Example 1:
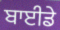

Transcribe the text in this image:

ਬਾਈਡੇ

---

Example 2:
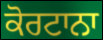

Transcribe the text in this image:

ਕੋਰਟਾਨਾ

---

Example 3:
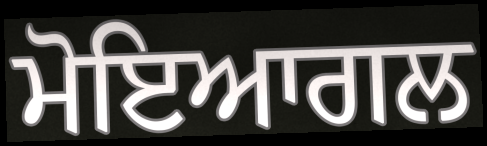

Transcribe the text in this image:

ਮੋਇਆਗਲ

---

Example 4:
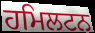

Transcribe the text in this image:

ਹਮਿਲਟਨ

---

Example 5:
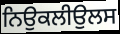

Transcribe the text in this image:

ਨਿਉਕਲੀਉਲਸ